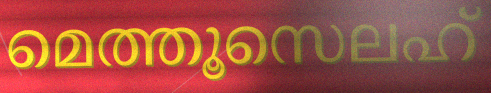
മെത്തൂസെലഹ്